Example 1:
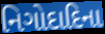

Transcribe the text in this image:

નિગોદાદિના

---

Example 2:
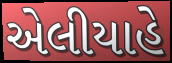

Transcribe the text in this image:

એલીયાહે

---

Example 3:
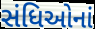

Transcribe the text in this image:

સંધિઓનાં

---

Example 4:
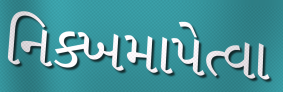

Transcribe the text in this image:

નિક્ખમાપેત્વા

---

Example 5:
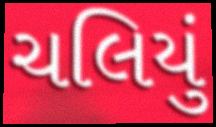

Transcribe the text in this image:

ચલિયું